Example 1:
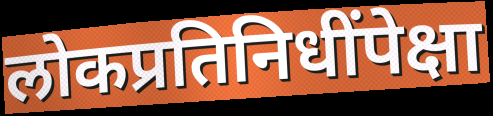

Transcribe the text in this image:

लोकप्रतिनिधींपेक्षा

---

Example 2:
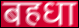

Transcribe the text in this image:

बहधा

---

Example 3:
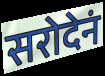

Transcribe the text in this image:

सरोदेनं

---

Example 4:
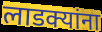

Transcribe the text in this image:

लाडक्यांना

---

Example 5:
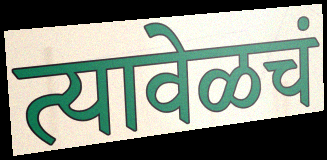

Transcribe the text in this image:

त्यावेळचं